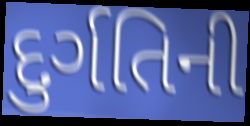
દુર્ગતિની